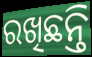
ରଖିଛନ୍ତି